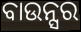
ବାଉନ୍ସର